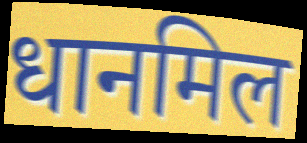
धानमिल